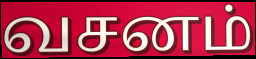
வசனம்